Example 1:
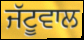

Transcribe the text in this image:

ਜੱਟੂਵਾਲ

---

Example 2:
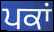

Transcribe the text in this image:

ਪਕਾਂ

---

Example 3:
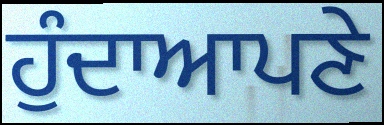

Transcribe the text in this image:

ਹੁੰਦਾਆਪਣੇ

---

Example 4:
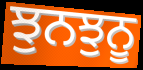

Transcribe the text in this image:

ਝੁਨਝੁਨੂ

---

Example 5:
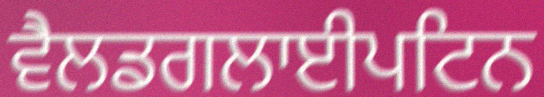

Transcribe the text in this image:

ਵੈਲਡਗਲਾਈਪਟਿਨ